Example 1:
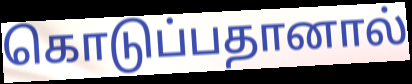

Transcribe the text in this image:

கொடுப்பதானால்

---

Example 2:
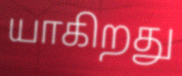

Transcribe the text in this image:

யாகிறது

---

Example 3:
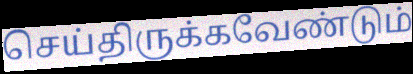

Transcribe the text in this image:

செய்திருக்கவேண்டும்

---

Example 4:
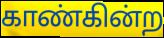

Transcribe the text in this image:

காண்கின்ற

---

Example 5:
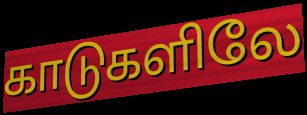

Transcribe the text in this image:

காடுகளிலே